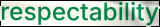
respectability